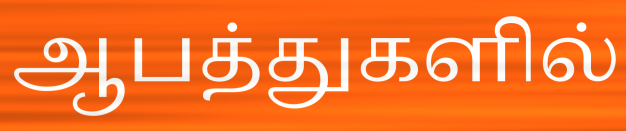
ஆபத்துகளில்